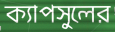
ক্যাপসুলের